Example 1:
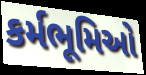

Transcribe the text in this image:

કર્મભૂમિઓ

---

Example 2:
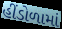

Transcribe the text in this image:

હીંડોળામાં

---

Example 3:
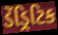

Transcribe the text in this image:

ડેંડ્રિટિક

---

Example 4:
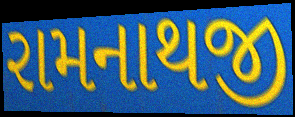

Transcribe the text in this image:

રામનાથજી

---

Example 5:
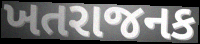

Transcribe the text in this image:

ખતરાજનક